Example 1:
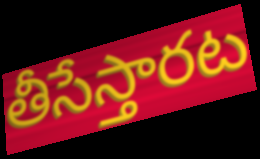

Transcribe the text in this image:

తీసేస్తారట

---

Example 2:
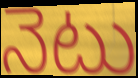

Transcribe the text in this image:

నెటు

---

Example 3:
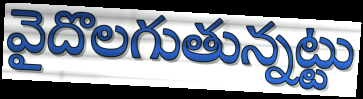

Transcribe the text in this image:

వైదొలగుతున్నట్టు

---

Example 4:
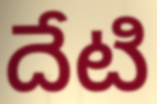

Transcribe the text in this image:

దేటి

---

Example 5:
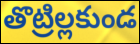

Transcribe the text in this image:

తొట్రిల్లకుండ